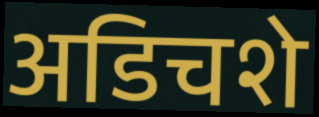
अडिचशे